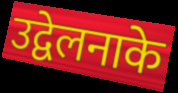
उद्वेलनाके